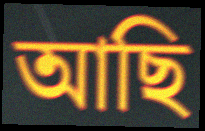
আছি